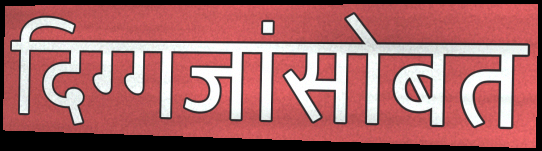
दिग्गजांसोबत